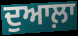
ਦੁਆਲ਼ਾ